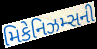
મિકેનિઝમ્સની